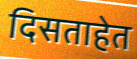
दिसताहेत